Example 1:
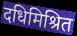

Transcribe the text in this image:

दधिमिश्रित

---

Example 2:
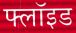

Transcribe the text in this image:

फ्लॉइड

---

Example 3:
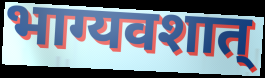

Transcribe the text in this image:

भाग्यवशात्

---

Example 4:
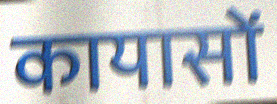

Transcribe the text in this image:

कायासों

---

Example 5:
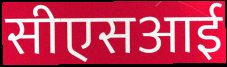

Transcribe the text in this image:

सीएसआई